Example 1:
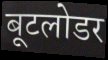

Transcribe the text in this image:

बूटलोडर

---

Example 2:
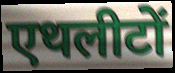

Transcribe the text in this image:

एथलीटों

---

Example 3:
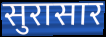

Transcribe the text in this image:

सुरासार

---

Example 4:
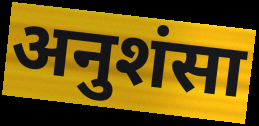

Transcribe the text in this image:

अनुशंसा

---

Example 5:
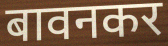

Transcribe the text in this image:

बावनकर